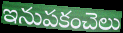
ఇనుపకంచెలు